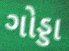
ગોડ્ડા